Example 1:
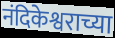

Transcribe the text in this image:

नंदिकेश्वराच्या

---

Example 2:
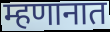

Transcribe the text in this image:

म्हणानात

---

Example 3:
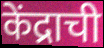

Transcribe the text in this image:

केंद्राची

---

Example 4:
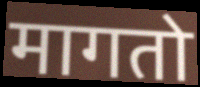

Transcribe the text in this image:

मागतो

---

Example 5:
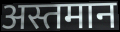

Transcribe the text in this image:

अस्तमान